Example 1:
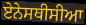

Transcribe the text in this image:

ਏਨੇਸਥੀਸੀਆ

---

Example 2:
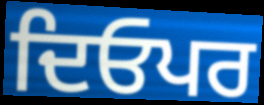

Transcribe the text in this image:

ਦਿਓਪਰ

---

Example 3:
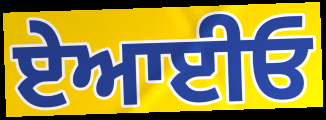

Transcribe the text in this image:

ਏਆਈਓ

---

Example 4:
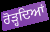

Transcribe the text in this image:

ਰੋੜ੍ਹਦਿਆਂ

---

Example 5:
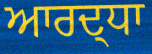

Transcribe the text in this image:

ਆਰਦ੍ਧਾ